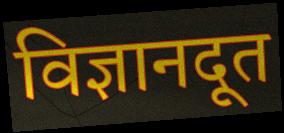
विज्ञानदूत